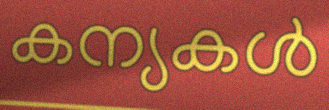
കന്യകൾ